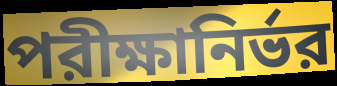
পরীক্ষানির্ভর